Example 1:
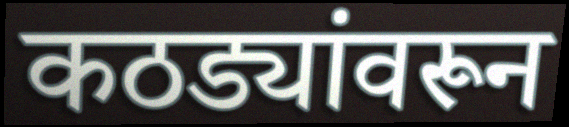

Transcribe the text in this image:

कठड्यांवरून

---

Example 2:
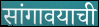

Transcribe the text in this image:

सांगावयाची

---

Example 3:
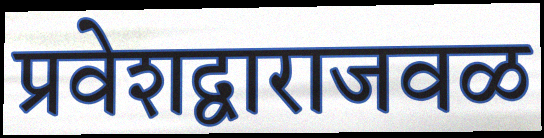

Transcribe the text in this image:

प्रवेशद्वाराजवळ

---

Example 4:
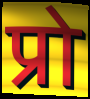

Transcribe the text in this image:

प्रो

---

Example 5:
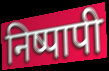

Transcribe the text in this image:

निष्पापी